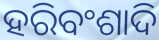
ହରିବଂଶାଦି